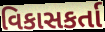
વિકાસકર્તા